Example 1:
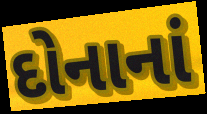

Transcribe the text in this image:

દોનાનાં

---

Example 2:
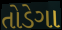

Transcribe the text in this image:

તોડેગા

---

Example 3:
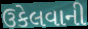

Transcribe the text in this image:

ઉકેલવાની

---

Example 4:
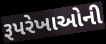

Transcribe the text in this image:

રૂપરેખાઓની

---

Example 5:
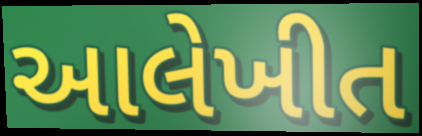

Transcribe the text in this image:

આલેખીત